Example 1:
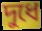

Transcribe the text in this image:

দুধে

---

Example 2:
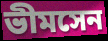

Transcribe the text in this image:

ভীমসেন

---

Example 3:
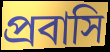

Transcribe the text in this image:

প্রবাসি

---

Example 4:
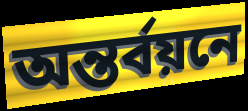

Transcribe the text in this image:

অন্তর্বয়নে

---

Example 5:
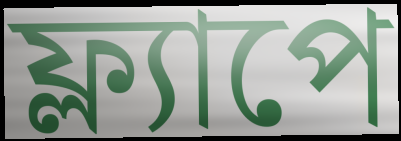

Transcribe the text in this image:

ফ্ল্যাপে